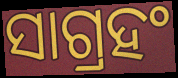
ସାଗ୍ରହଂ